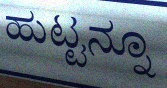
ಹುಟ್ಟನ್ನೂ